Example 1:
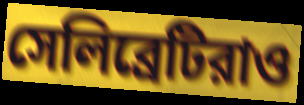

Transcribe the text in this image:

সেলিব্রেটিরাও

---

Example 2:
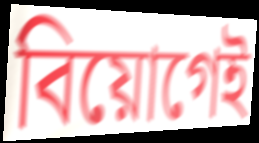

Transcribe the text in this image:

বিয়োগেই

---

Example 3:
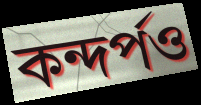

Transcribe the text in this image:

কন্দর্পও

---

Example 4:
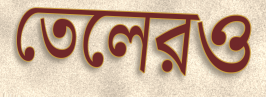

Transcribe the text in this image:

তেলেরও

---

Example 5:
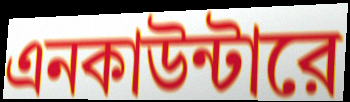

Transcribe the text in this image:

এনকাউন্টারে